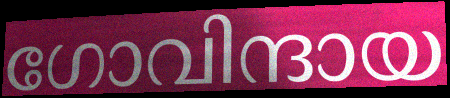
ഗോവിന്ദായ